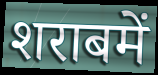
शराबमें